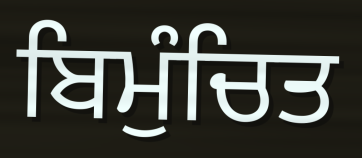
ਬਿਮੁੰਚਿਤ